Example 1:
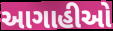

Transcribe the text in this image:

આગાહીઓ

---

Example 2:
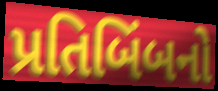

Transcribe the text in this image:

પ્રતિબિંબનો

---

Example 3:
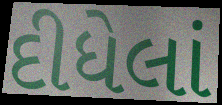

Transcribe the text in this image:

દીધેલાં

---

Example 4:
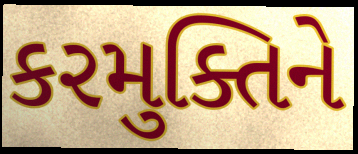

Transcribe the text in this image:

કરમુક્તિને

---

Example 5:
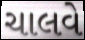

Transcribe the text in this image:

ચાલવે